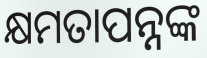
କ୍ଷମତାପନ୍ନଙ୍କ